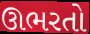
ઊભરતો